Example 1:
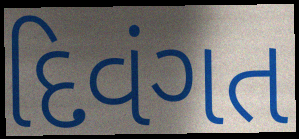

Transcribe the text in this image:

દિવંગત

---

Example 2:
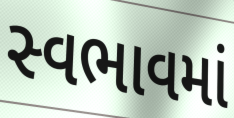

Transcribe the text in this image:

સ્વભાવમાં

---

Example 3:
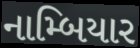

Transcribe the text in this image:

નામ્બિયાર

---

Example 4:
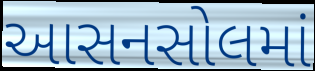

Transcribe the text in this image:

આસનસોલમાં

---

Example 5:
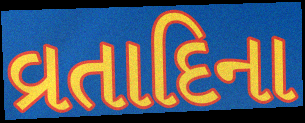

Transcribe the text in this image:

વ્રતાદિના